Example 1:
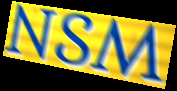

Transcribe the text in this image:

NSM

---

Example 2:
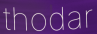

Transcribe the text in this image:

thodar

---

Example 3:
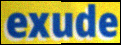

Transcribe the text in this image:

exude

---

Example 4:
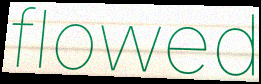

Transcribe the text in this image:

flowed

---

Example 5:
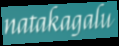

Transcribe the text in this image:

natakagalu